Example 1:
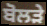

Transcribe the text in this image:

ਬੋਲੜੇ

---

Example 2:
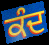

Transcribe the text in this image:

ਕੰਦ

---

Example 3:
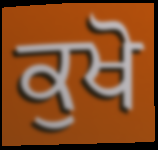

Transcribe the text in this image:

ਕੁਖੋ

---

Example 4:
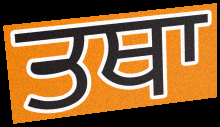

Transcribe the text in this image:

ਤਥਾ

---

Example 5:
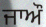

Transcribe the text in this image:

ਜਾਔ